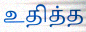
உதித்த